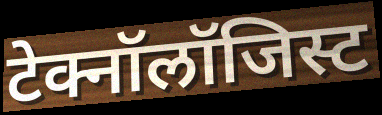
टेक्नॉलॉजिस्ट